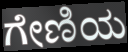
ಗೇಣಿಯ